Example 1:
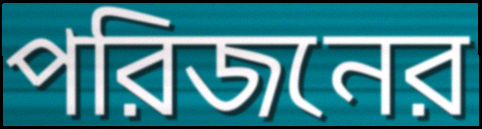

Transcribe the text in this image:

পরিজনের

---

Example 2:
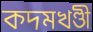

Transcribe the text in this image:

কদমখণ্ডী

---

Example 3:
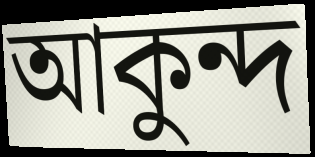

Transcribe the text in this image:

আকুন্দ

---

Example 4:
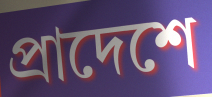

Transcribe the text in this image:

প্রাদেশে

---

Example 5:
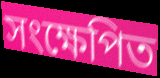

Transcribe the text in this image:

সংক্ষেপিত